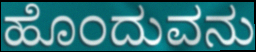
ಹೊಂದುವನು